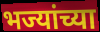
भज्यांच्या